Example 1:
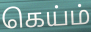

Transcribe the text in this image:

கெய்ம்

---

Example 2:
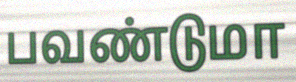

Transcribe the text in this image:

பவண்டுமா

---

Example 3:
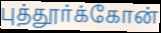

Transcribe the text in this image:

புத்தூர்க்கோன்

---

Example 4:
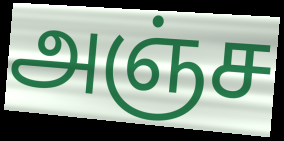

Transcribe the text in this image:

அஞ்ச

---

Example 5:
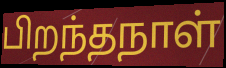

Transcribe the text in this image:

பிறந்தநாள்